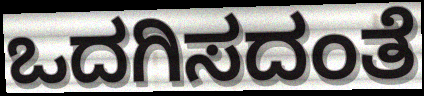
ಒದಗಿಸದಂತೆ